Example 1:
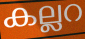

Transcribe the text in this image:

കല്ലറ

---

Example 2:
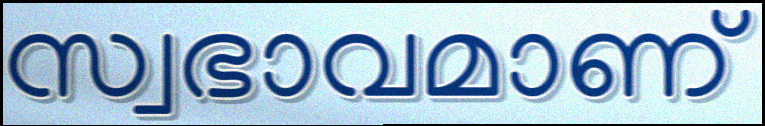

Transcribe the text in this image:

സ്വഭാവമാണ്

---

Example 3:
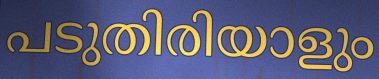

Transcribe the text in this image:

പടുതിരിയാളും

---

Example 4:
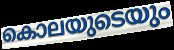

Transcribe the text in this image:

കൊലയുടെയും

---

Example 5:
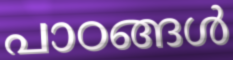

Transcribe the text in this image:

പാഠങ്ങൾ